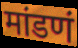
मांडणं